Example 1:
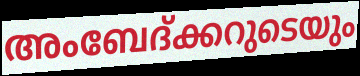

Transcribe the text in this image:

അംബേദ്ക്കറുടെയും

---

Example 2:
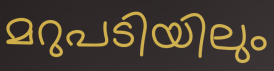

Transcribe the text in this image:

മറുപടിയിലും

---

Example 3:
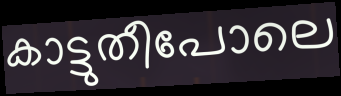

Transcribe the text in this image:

കാട്ടുതീപോലെ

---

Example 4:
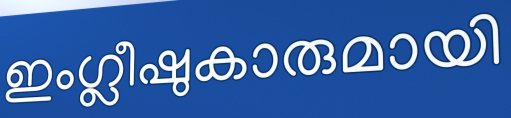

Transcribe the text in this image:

ഇംഗ്ലീഷുകാരുമായി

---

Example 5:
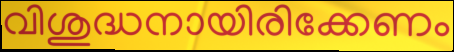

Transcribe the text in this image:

വിശുദ്ധനായിരിക്കേണം